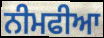
ਨੀਮਫੀਆ